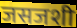
जसजशी